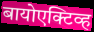
बायोएक्टिव्ह